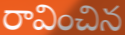
రావించిన